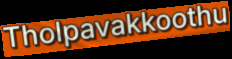
Tholpavakkoothu